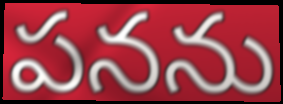
పనను